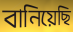
বানিয়েছি